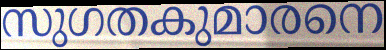
സുഗതകുമാരനെ